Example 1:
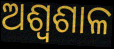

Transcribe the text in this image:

ଅଶ୍ୱଶାଳ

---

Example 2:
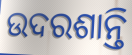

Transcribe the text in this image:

ଉଦରଶାନ୍ତି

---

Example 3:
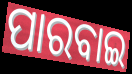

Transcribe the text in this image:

ପାରବାଇ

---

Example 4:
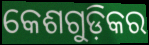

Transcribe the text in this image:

କେଶଗୁଡ଼ିକର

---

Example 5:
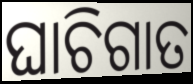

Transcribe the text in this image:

ଘାଚିଗାତ